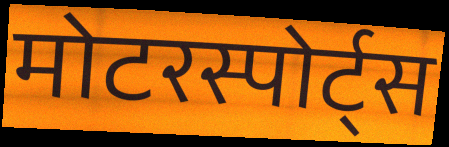
मोटरस्पोर्ट्स